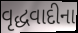
વૃદ્ધવાદીના